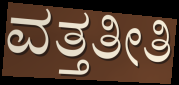
ವತ್ತತೀತಿ